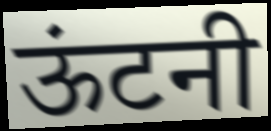
ऊंटनी